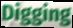
Digging